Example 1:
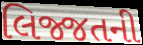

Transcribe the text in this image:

લિજ્જતની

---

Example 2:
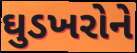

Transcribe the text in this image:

ઘુડખરોને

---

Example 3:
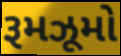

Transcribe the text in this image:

રૂમઝૂમો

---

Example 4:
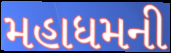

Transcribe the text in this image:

મહાધમની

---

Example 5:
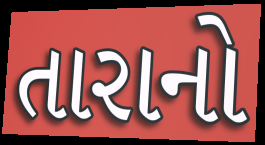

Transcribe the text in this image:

તારાનો